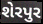
શેરપુર